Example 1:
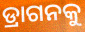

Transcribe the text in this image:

ଡ୍ରାଗନକୁ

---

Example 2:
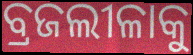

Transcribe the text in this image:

ବ୍ରଜଲୀଳାକୁ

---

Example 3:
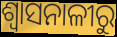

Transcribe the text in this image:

ଶ୍ୱାସନାଳୀରୁ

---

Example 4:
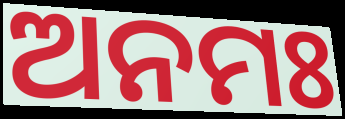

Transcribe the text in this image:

ଅନମଃ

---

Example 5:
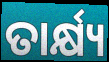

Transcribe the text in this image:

ତାର୍କ୍ଷ୍ୟ